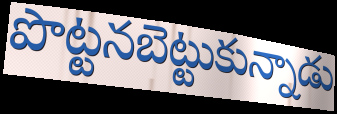
పొట్టనబెట్టుకున్నాడు